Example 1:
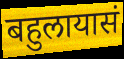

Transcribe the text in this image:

बहुलायासं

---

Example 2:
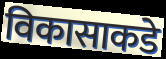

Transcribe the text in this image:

विकासाकडे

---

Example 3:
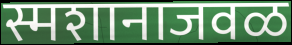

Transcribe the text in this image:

स्मशानाजवळ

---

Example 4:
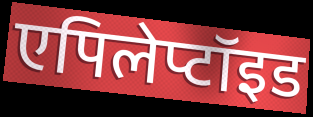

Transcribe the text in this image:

एपिलेप्टॉइड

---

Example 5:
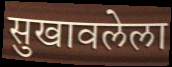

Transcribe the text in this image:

सुखावलेला